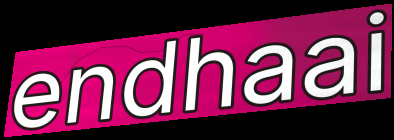
endhaai